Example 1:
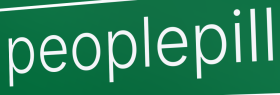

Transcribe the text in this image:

peoplepill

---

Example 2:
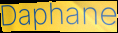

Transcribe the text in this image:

Daphane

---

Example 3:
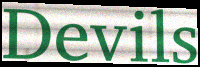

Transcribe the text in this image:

Devils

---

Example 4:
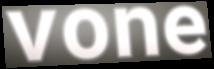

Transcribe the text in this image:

vone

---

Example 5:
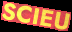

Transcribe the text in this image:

SCIEU